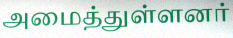
அமைத்துள்ளனர்